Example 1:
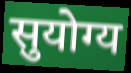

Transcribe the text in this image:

सुयोग्य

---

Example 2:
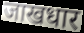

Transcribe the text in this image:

जाखधार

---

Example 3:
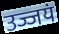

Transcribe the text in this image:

उज्जयं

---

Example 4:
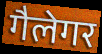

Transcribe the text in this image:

गैलेगर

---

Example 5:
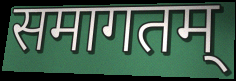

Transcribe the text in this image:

समागतम्